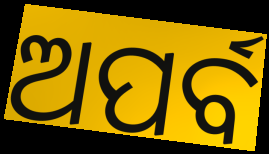
ଅପର୍ବ